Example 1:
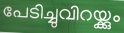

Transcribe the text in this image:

പേടിച്ചുവിറയ്ക്കും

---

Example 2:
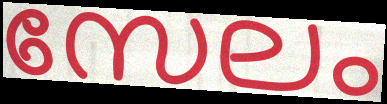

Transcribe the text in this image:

സേലം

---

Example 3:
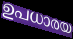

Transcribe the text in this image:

ഉപധാരയ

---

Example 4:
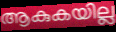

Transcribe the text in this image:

ആകുകയില്ല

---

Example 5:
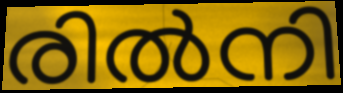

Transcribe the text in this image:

രിൽനി